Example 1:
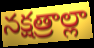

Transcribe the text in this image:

నక్షత్రాల్లా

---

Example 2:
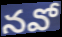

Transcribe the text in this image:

నవో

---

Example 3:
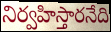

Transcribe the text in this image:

నిర్వహిస్తారనేది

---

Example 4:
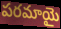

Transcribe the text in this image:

పరమాయై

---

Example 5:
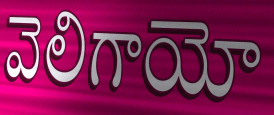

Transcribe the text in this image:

వెలిగాయో